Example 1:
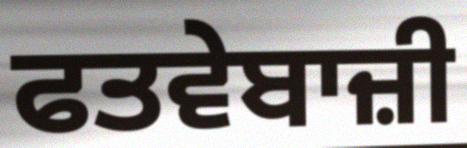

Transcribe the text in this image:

ਫਤਵੇਬਾਜ਼ੀ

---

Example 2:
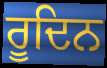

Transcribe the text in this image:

ਰੂਦਿਨ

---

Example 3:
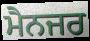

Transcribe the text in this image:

ਮੈਨਜਰ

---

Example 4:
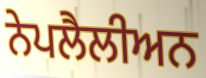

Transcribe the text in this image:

ਨੇਪਲੈਲੀਅਨ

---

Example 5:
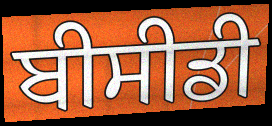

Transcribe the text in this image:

ਬੀਸੀਡੀ